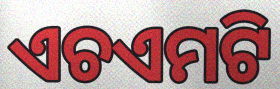
ଏଚଏମଟି